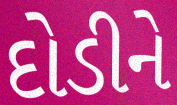
દોડીને